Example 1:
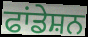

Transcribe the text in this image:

ਫਾਂਡੇਸ਼ਨ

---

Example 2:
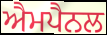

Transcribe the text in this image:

ਐਮਪੈਨਲ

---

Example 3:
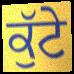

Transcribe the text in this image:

ਕੁੱਟੇ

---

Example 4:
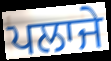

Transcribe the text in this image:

ਪਲਾਜੇ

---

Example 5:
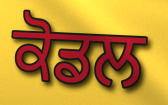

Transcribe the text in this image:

ਕੋਡਲ